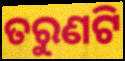
ତରୁଣଟି